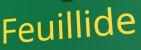
Feuillide